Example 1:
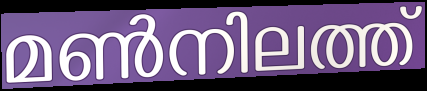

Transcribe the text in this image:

മൺനിലത്ത്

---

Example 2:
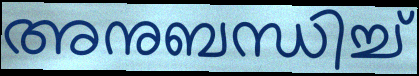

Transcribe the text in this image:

അനുബന്ധിച്ച്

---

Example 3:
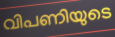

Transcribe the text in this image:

വിപണിയുടെ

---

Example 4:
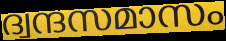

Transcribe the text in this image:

ദ്വന്ദസമാസം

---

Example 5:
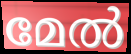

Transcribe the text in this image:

മേൽ